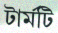
টার্মটি